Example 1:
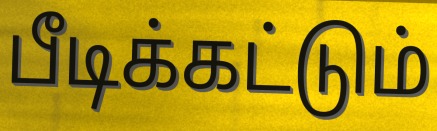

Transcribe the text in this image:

பீடிக்கட்டும்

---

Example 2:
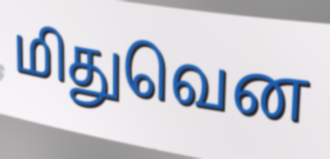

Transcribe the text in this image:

மிதுவென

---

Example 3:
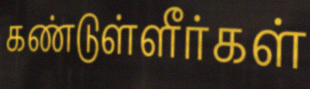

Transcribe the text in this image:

கண்டுள்ளீர்கள்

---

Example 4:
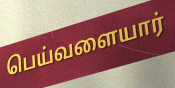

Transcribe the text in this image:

பெய்வளையார்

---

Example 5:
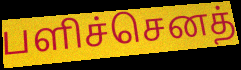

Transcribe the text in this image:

பளிச்செனத்